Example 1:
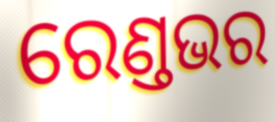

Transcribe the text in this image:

ରେଣ୍ଡଭର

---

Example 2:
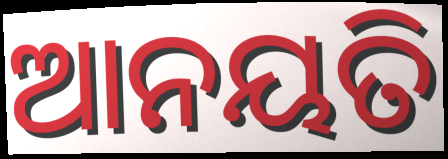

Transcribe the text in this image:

ଆନୟତି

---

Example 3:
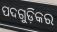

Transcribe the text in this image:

ପଦଗୁଡ଼ିକର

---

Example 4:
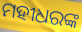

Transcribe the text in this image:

ମହୀଧରଙ୍କ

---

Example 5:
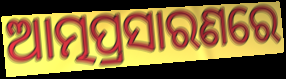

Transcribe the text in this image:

ଆତ୍ମପ୍ରସାରଣରେ